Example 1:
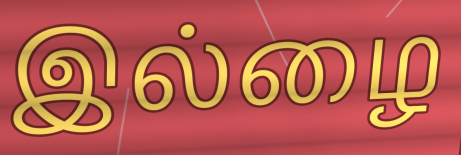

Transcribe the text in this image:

இல்ழை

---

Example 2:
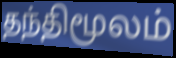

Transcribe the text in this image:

தந்திமூலம்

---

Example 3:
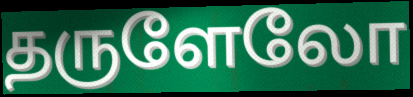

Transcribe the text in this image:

தருளேலோ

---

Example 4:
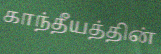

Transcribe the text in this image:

காந்தீயத்தின்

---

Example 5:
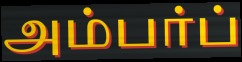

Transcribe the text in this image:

அம்பர்ப்